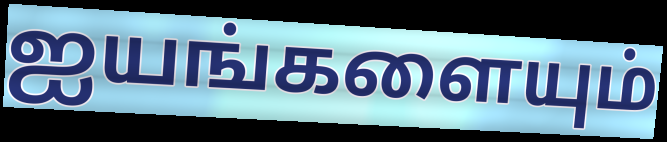
ஐயங்களையும்